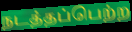
நடத்தப்பெற்ற